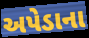
અપેડાના